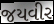
જયવીર